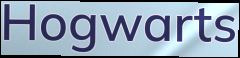
Hogwarts